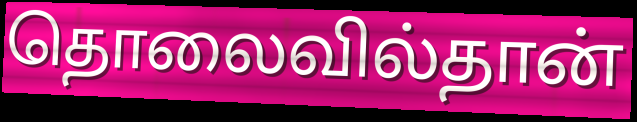
தொலைவில்தான்